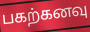
பகற்கனவு